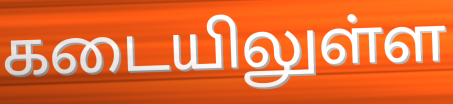
கடையிலுள்ள